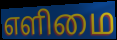
எளிமை